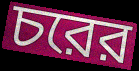
চরের